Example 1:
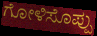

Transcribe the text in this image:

ಗೋಳಿಸೊಪ್ಪು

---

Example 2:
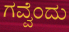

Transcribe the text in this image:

ಗವ್ವೆಂದು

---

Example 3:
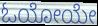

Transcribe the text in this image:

ಓಯೋಯೇ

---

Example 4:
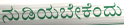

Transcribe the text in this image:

ನುಡಿಯಬೇಕೆಂದು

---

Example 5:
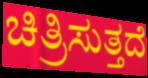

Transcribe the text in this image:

ಚಿತ್ರಿಸುತ್ತದೆ